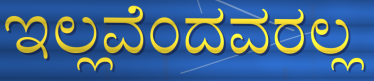
ಇಲ್ಲವೆಂದವರಲ್ಲ